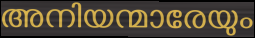
അനിയന്മാരേയും